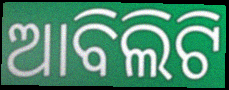
ଆବିଲିଟି